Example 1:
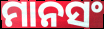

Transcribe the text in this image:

ମାନସଂ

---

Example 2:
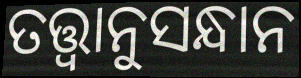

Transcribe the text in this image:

ତତ୍ତ୍ବାନୁସନ୍ଧାନ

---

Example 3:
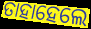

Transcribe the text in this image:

ତାହାହେଲେ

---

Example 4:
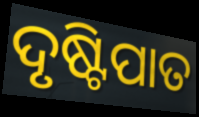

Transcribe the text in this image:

ଦୃଷ୍ଟିପାତ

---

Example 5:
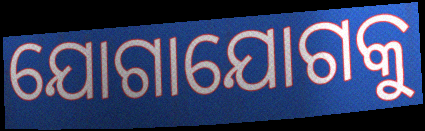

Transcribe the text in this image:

ଯୋଗାଯୋଗକୁ